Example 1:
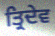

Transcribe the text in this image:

ਤ੍ਰਿਦੇਵ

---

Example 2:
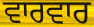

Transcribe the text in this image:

ਵਾਰਵਾਰ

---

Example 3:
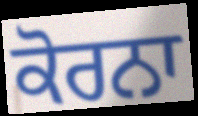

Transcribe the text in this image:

ਕੋਰਨਾ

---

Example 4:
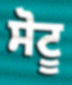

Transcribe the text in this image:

ਸੋਟੂ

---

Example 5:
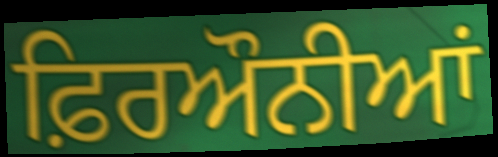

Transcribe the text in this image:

ਫ਼ਿਰਔਨੀਆਂ